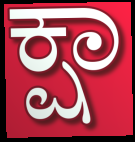
ಕ್ಷಾ